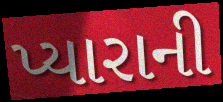
પ્યારાની